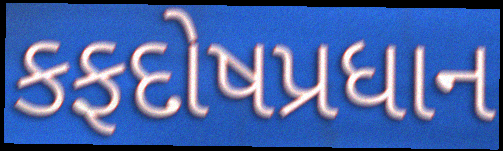
કફદોષપ્રધાન